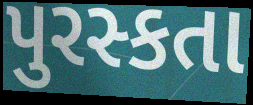
પુરસ્કતા